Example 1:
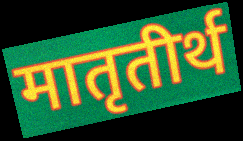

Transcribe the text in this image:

मातृतीर्थ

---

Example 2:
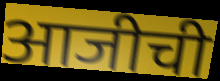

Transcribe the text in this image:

आजीची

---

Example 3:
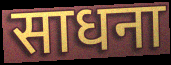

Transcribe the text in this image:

साधना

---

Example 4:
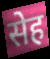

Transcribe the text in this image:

सेह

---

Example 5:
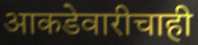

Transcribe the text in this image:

आकडेवारीचाही